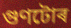
গুণটোৰ